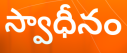
స్వాధీనం